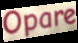
Opare